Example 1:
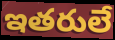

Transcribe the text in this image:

ఇతరులే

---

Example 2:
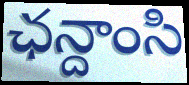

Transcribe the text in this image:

ఛన్దాంసి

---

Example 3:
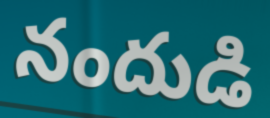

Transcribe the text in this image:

నందుడి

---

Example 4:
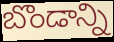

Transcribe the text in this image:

బొండాన్ని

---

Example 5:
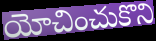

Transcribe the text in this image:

యోచించుకొని